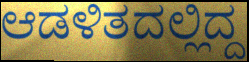
ಆಡಳಿತದಲ್ಲಿದ್ದ